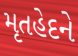
મૃતહેદને